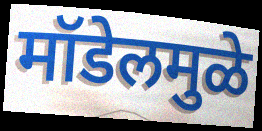
मॉडेलमुळे